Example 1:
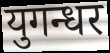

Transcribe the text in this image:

युगन्धर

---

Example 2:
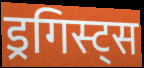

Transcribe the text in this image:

ड्रगिस्ट्स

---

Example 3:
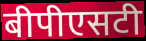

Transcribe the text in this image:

बीपीएसटी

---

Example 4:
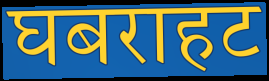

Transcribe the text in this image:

घबराहट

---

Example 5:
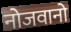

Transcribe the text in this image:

नोजवानो